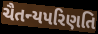
ચૈતન્યપરિણતિ